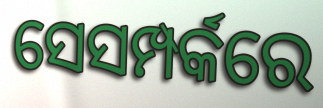
ସେସମ୍ପର୍କରେ